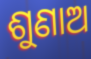
ଶୁଣାଅ